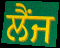
ਲੈਂਜ